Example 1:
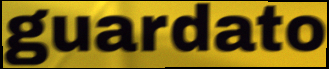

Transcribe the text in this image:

guardato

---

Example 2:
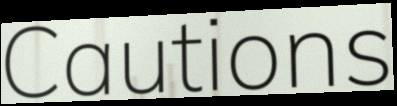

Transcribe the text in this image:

Cautions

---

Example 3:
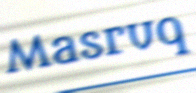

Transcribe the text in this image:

Masruq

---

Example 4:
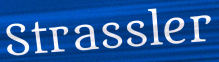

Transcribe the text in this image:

Strassler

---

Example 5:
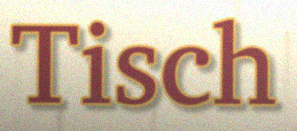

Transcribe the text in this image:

Tisch